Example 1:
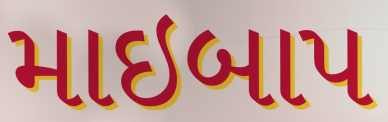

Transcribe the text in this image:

માઇબાપ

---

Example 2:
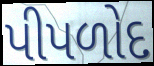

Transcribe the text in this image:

પીપળોદ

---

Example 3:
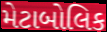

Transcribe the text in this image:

મેટાબોલિક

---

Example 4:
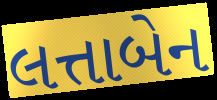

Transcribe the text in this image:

લત્તાબેન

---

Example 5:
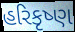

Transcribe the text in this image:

હરિકૃષ્ણ